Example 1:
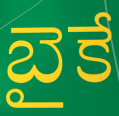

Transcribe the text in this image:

బైకే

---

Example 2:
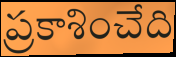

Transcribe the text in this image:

ప్రకాశించేది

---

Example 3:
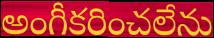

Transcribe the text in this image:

అంగీకరించలేను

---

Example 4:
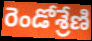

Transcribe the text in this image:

రెండోశ్రేణి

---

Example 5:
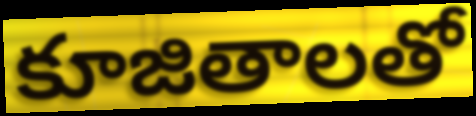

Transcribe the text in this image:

కూజితాలతో